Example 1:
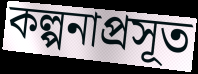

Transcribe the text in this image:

কল্পনাপ্ৰসূত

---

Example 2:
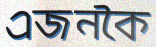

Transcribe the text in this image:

এজনকৈ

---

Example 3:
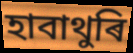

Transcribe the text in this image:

হাবাথুৰি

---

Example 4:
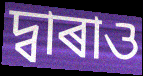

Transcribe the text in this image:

দ্বাৰাও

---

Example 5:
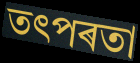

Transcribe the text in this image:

তৎপৰতা